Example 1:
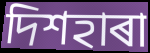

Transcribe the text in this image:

দিশহাৰা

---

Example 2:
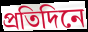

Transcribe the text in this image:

প্ৰতিদিনে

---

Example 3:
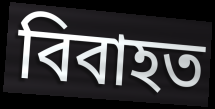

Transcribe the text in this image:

বিবাহত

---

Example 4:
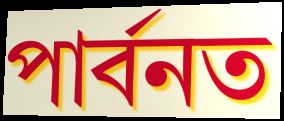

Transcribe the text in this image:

পাৰ্বনত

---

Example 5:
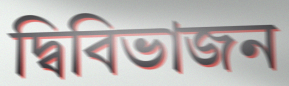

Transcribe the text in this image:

দ্বিবিভাজন